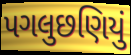
પગલુછણિયું